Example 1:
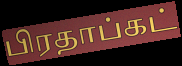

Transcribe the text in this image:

பிரதாப்கட்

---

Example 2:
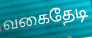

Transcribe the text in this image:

வகைதேடி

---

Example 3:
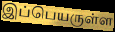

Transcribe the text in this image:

இப்பெயருள்ள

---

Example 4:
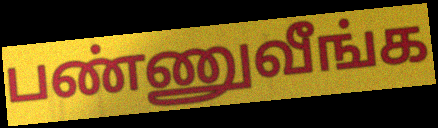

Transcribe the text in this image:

பண்ணுவீங்க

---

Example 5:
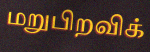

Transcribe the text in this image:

மறுபிறவிக்